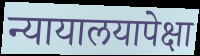
न्यायालयापेक्षा